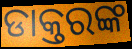
ଡାକ୍ତରଙ୍କ